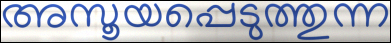
അസൂയപ്പെടുത്തുന്ന